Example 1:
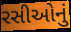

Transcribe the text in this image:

રસીઓનું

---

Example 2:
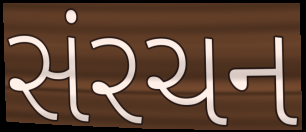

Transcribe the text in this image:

સંરચન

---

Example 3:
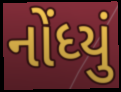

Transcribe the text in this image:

નોંધ્યું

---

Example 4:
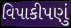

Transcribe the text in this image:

વિપાકીપણું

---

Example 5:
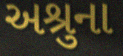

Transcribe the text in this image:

અશ્રુના